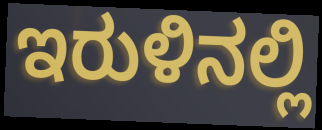
ಇರುಳಿನಲ್ಲಿ